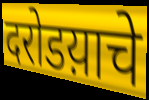
दरोडय़ाचे